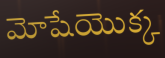
మోషేయొక్క